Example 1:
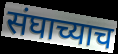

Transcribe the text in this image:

संघाच्याच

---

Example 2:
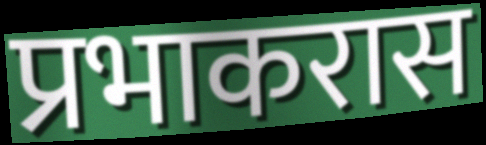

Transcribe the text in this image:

प्रभाकरास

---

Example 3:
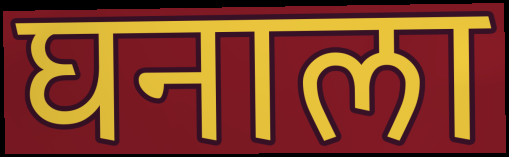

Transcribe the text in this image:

घनाला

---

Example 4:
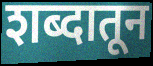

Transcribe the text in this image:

शब्दातून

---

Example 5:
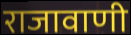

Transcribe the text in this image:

राजावाणी